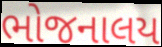
ભોજનાલય